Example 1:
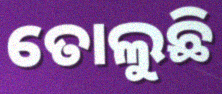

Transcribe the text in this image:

ତୋଲୁଛି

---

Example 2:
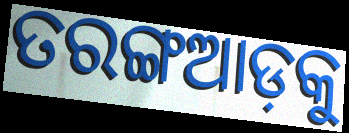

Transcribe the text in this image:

ତରଙ୍ଗଆଡ଼କୁ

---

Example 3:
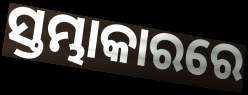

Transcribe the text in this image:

ସ୍ତମ୍ଭାକାରରେ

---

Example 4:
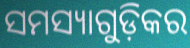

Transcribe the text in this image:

ସମସ୍ୟାଗୁଡ଼ିକର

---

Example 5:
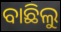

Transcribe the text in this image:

ବାଛିଲୁ